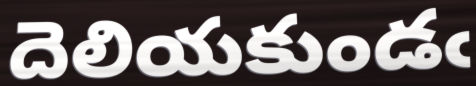
దెలియకుండఁ